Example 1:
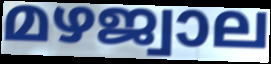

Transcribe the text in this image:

മഴജ്വാല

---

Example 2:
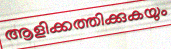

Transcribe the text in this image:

ആളിക്കത്തിക്കുകയും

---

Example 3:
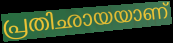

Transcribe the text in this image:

പ്രതിഛായയാണ്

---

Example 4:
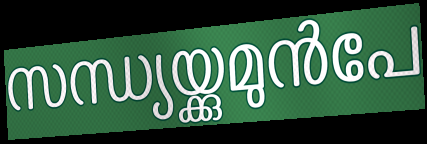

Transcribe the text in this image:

സന്ധ്യയ്ക്കുമുൻപേ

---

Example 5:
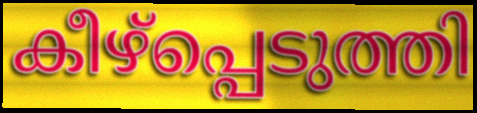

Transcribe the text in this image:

കീഴ്പ്പെടുത്തി